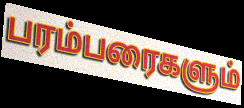
பரம்பரைகளும்